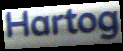
Hartog